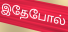
இதேபோல்